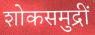
शोकसमुद्रीं